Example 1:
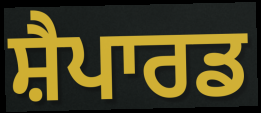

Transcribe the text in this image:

ਸ਼ੈਪਾਰਡ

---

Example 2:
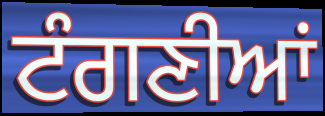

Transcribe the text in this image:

ਟੰਗਣੀਆਂ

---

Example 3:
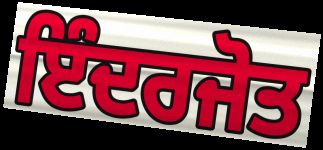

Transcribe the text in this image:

ਇੰਦਰਜੋਤ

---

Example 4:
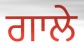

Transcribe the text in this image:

ਗਾਲੇ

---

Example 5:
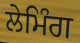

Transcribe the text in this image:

ਲੇਮਿੰਗ